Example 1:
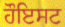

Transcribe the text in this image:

ਹੌਇਸਟ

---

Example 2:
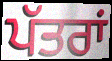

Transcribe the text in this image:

ਪੱਤਰਾਂ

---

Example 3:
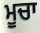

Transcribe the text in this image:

ਮੂਚਾ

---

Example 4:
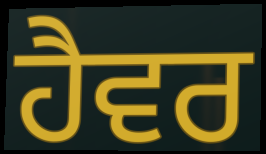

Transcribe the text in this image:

ਹੈਵਰ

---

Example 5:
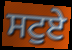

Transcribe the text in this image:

ਸਟੁਏ